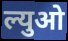
ल्युओ